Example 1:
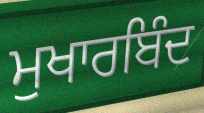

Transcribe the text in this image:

ਮੁਖਾਰਬਿੰਦ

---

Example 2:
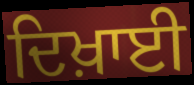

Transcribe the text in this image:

ਦਿਖ਼ਾਈ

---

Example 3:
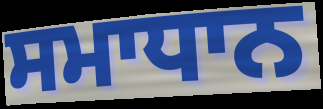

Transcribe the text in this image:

ਸਮਾਧਾਨ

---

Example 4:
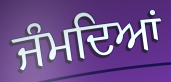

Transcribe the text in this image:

ਜੰਮਦਿਆਂ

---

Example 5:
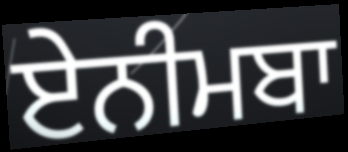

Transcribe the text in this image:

ਏਨੀਮਬਾ